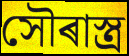
সৌৰাস্ত্ৰ